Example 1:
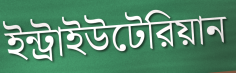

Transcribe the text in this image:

ইন্ট্রাইউটেরিয়ান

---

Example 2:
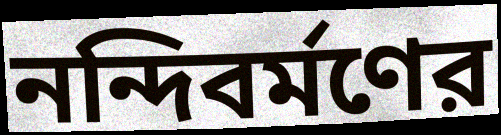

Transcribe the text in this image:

নন্দিবর্মণের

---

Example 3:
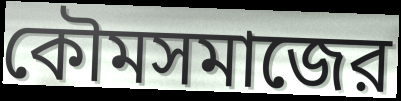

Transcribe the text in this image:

কৌমসমাজের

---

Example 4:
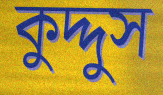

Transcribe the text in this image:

কুদ্দুস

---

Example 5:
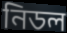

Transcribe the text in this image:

নিডল